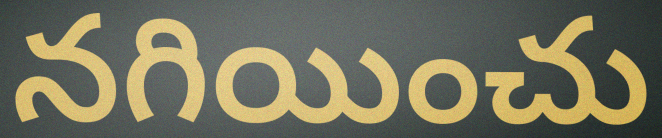
నగియించు